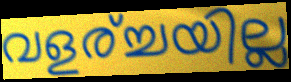
വളര്ച്ചയില്ല